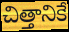
చిత్తానికే